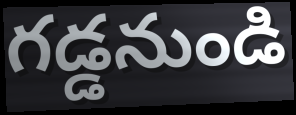
గడ్డనుండి